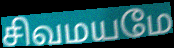
சிவமயமே